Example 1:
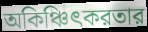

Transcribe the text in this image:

অকিঞ্চিৎকরতার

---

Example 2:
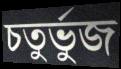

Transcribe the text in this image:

চতুর্ভুজ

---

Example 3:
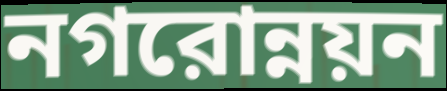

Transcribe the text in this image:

নগরোন্নয়ন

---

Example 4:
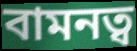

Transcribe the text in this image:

বামনত্ব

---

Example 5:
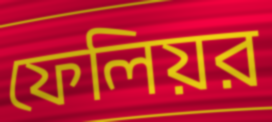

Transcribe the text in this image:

ফেলিয়র